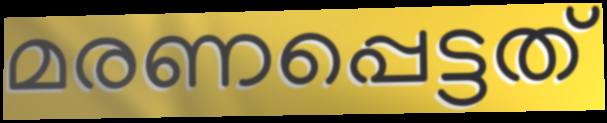
മരണപ്പെട്ടത്